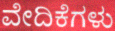
ವೇದಿಕೆಗಳು